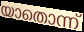
യാതൊന്ന്